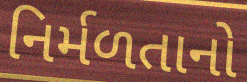
નિર્મળતાનો